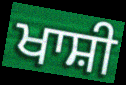
ਖਾਸ਼ੀ